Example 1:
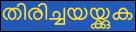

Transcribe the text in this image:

തിരിച്ചയയ്ക്കുക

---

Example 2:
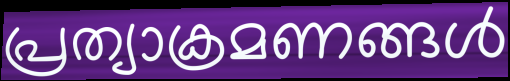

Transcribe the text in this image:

പ്രത്യാക്രമണങ്ങൾ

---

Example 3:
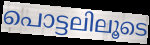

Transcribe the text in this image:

പൊട്ടലിലൂടെ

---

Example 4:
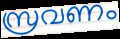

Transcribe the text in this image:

സ്രവണം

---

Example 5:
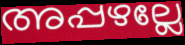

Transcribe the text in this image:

അപ്പഴല്ലേ